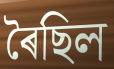
ৰৈছিল